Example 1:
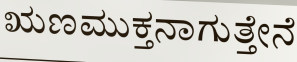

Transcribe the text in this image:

ಋಣಮುಕ್ತನಾಗುತ್ತೇನೆ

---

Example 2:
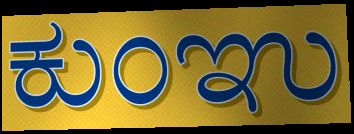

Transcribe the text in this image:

ಕುಂಞು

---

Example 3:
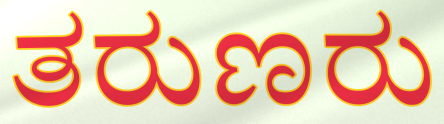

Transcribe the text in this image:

ತರುಣರು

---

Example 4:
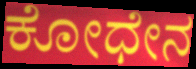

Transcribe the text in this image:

ಕೋಧೇನ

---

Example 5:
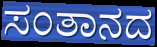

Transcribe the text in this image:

ಸಂತಾನದ